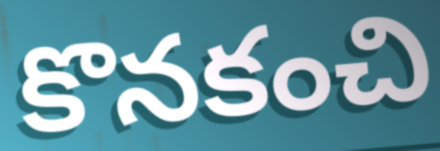
కొనకంచి